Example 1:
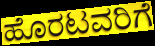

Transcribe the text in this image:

ಹೊರಟವರಿಗೆ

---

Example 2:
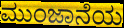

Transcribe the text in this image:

ಮುಂಜಾನೆಯ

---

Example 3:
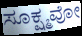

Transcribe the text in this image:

ಸೂಕ್ಷ್ಮವೋ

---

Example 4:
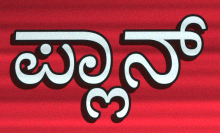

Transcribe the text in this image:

ಪ್ಲಾನ್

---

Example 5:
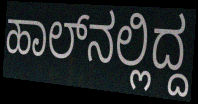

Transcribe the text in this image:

ಹಾಲ್‌ನಲ್ಲಿದ್ದ